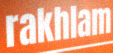
rakhlam